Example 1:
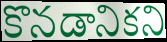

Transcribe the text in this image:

కొనడానికని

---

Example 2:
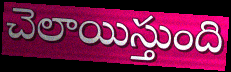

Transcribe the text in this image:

చెలాయిస్తుంది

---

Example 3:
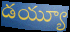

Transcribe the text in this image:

డయ్యూ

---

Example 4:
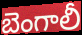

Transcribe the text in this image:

బెంగాలీ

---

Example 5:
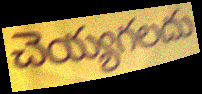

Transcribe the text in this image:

చెయ్యగలదు